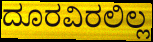
ದೂರವಿರಲಿಲ್ಲ